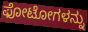
ಫೋಟೋಗಳನ್ನು